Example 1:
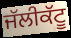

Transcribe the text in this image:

ਜੱਲੀਕੱਟੂ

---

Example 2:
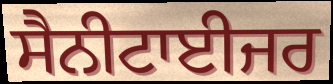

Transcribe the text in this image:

ਸੈਨੀਟਾਈਜਰ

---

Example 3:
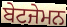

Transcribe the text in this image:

ਬੇਟਜੇਮਨ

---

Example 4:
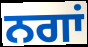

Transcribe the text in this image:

ਨਗਾਂ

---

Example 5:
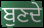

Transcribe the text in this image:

ਬੁਣਦੇ